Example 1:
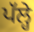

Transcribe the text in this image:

ਪੱਲ੍ਹੇ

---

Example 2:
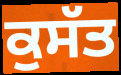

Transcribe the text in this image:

ਕੁਸੱਤ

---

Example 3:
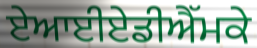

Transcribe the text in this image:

ਏਆਈਏਡੀਐੱਮਕੇ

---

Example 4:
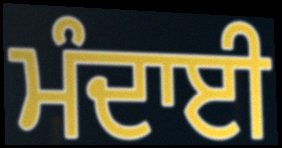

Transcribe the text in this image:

ਮੰਦਾਈ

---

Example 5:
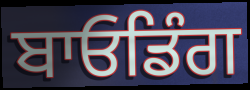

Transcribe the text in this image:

ਬਾਓਡਿੰਗ